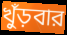
খুঁড়বার